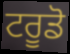
ਟਰੂਡੋ